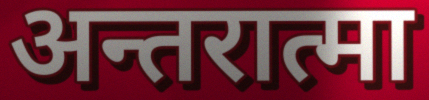
अन्तरात्मा